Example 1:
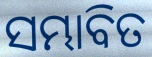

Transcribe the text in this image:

ସମ୍ଭାବିତ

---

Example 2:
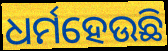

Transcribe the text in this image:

ଧର୍ମହେଉଛି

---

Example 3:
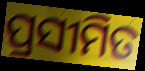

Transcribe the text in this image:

ପ୍ରସୀମିତ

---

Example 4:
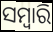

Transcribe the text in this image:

ସମ୍ବାରି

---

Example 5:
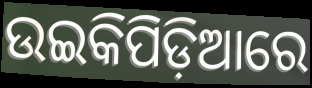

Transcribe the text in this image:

ଉଇକିପିଡ଼ିଆରେ